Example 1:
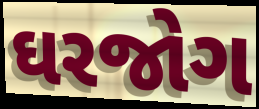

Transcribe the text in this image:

ઘરજોગ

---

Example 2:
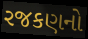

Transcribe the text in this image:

રજકણનો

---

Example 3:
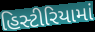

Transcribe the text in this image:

હિસ્ટીરિયામાં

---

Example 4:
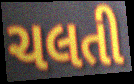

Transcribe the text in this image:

ચલતી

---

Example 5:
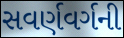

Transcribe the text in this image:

સવર્ણવર્ગની